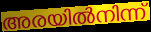
അരയിൽനിന്ന്